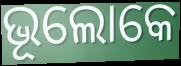
ଭୂଲୋକେ